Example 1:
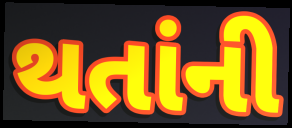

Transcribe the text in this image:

થતાંની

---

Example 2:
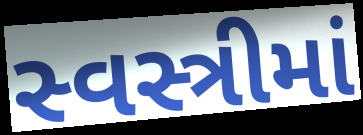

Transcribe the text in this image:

સ્વસ્ત્રીમાં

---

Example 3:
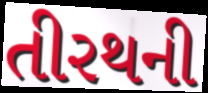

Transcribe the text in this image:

તીરથની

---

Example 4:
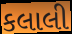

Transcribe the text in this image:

કલાલી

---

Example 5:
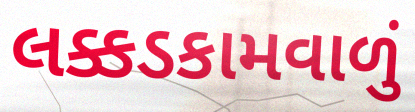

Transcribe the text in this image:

લક્કડકામવાળું